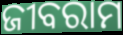
ଜୀବରାମ